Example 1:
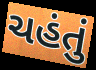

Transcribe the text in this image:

ચહંતું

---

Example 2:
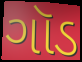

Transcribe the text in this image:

ગૉડ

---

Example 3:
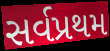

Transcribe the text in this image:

સર્વપ્રથમ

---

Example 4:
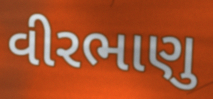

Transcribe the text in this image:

વીરભાણુ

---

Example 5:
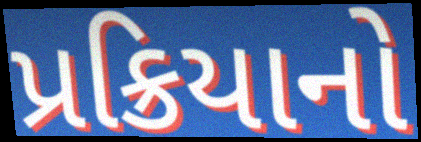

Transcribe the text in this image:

પ્રક્રિયાનો